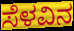
ಸೆಳವಿನ